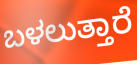
ಬಳಲುತ್ತಾರೆ